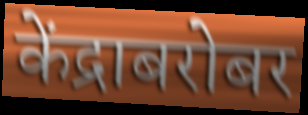
केंद्राबरोबर